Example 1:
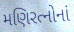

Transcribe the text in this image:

મણિરત્નોનાં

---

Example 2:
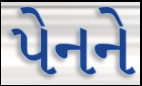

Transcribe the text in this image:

પેનને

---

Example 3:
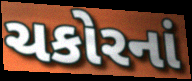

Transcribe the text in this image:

ચકોરનાં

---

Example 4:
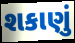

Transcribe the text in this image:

શકાણું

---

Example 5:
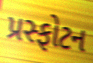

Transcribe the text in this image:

પ્રસ્ફોટન